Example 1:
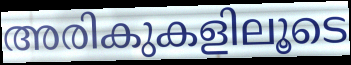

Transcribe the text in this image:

അരികുകളിലൂടെ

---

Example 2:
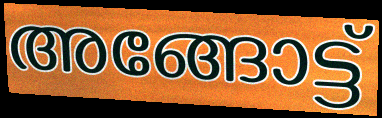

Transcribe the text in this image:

അങ്ങോട്ട്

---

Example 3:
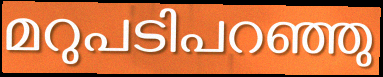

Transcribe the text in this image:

മറുപടിപറഞ്ഞു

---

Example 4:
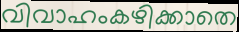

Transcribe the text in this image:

വിവാഹംകഴിക്കാതെ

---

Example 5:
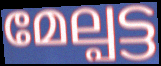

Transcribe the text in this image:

മേല്പട്ട